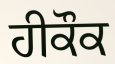
ਹੀਕੌਕ